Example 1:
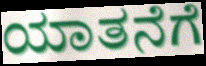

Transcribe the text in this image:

ಯಾತನೆಗೆ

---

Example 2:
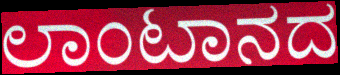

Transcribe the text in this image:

ಲಾಂಟಾನದ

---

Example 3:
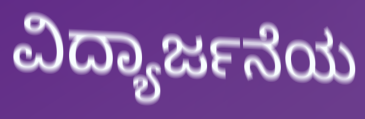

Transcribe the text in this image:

ವಿದ್ಯಾರ್ಜನೆಯ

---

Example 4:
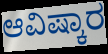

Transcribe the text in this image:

ಆವಿಷ್ಕಾರ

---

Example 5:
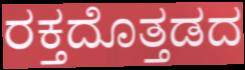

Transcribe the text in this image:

ರಕ್ತದೊತ್ತಡದ